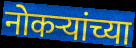
नोकर्‍यांच्या